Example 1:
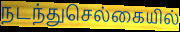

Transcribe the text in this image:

நடந்துசெல்கையில்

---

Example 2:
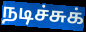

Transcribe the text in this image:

நடிச்சுக்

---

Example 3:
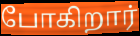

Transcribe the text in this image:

போகிறார்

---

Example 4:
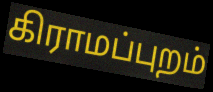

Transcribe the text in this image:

கிராமப்புறம்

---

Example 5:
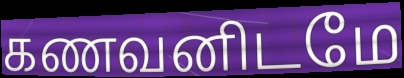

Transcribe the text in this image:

கணவனிடமே